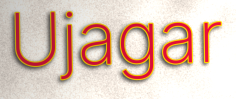
Ujagar